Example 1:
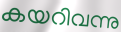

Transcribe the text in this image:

കയറിവന്നു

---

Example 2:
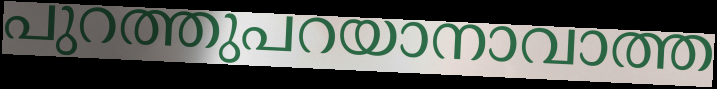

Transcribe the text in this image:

പുറത്തുപറയാനാവാത്ത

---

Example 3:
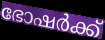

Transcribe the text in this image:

ഭോഷർക്ക്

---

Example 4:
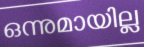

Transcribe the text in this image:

ഒന്നുമായില്ല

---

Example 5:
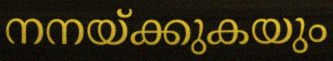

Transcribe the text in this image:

നനയ്ക്കുകയും